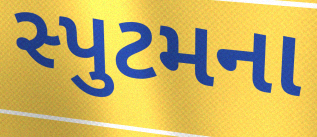
સ્પુટમના